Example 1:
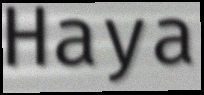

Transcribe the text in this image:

Haya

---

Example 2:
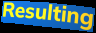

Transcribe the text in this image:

Resulting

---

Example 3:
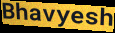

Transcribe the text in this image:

Bhavyesh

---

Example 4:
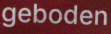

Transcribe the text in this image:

geboden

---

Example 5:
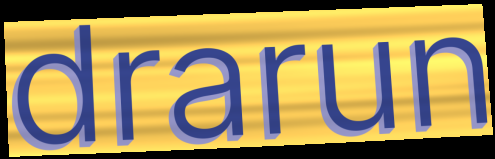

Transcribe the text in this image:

drarun